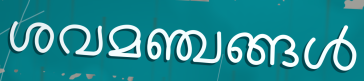
ശവമഞ്ചങ്ങൾ